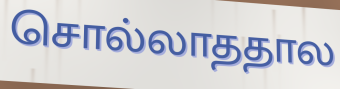
சொல்லாததால